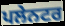
ਪਲੇਨਟਰ